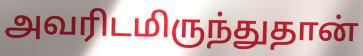
அவரிடமிருந்துதான்